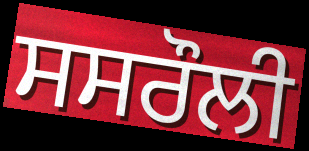
ਸਸਰੌਲੀ